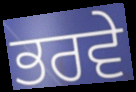
ਭਰਵੇ